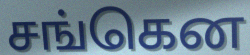
சங்கென